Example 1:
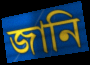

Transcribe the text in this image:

জানি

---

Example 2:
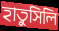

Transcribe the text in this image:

হাতুসিলি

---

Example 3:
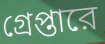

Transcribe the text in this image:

গ্রেপ্তারে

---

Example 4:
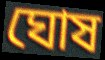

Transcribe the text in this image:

ঘোষ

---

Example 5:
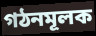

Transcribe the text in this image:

গঠনমূলক